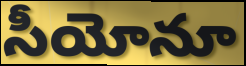
సీయోనూ